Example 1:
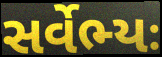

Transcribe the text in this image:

સર્વેભ્યઃ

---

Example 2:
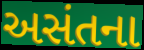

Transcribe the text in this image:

અસંતના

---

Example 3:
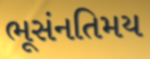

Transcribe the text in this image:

ભૂસંનતિમય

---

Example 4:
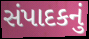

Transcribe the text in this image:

સંપાદકનું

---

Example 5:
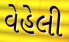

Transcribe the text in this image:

વેહેલી